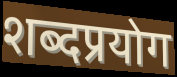
शब्दप्रयोग